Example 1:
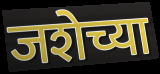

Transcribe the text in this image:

जशेच्या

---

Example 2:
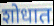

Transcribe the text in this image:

शोधात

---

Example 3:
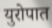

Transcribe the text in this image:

युरोपात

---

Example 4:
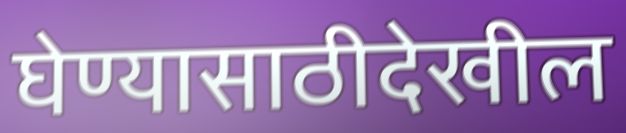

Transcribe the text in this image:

घेण्यासाठीदेखील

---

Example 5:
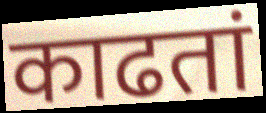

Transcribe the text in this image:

काढतां